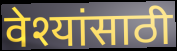
वेश्यांसाठी